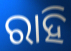
ରାହି